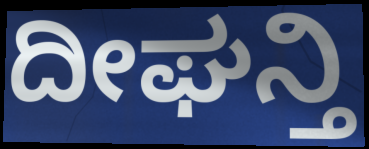
ದೀಘನ್ತಿ